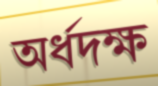
অর্ধদক্ষ